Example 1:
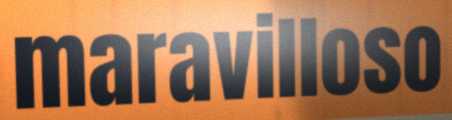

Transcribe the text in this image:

maravilloso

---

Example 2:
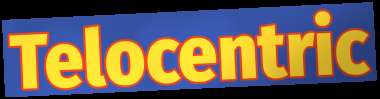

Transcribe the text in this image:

Telocentric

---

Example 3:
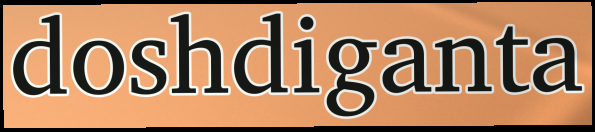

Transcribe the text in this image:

doshdiganta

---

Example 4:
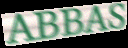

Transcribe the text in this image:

ABBAS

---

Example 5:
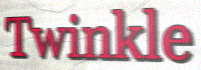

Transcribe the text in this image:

Twinkle